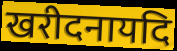
खरीदनायदि